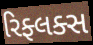
રિફ્લક્સ